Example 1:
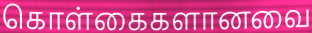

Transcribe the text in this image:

கொள்கைகளானவை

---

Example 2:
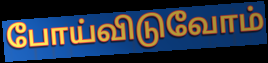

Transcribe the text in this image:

போய்விடுவோம்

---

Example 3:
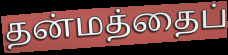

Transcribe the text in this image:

தன்மத்தைப்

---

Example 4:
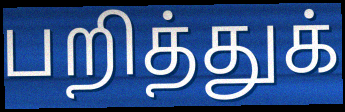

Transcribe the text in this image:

பறித்துக்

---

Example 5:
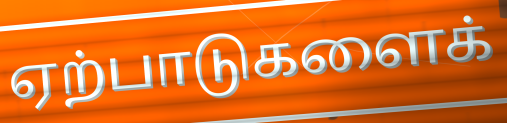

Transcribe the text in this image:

ஏற்பாடுகளைக்